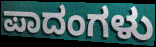
ಪಾದಂಗಳು